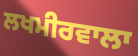
ਲਖਮੀਰਵਾਲਾ